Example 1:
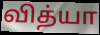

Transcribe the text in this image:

வித்யா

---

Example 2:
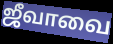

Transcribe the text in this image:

ஜீவாவை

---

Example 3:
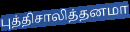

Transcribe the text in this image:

புத்திசாலித்தனமா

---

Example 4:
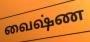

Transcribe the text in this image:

வைஷ்ண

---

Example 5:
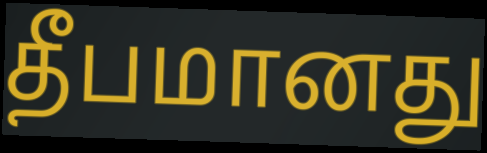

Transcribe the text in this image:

தீபமானது